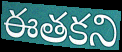
ఈతకని